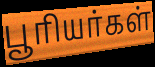
பூரியர்கள்